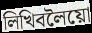
লিখিবলৈয়ো